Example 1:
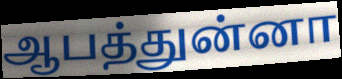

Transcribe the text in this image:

ஆபத்துன்னா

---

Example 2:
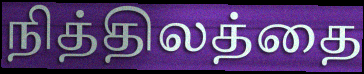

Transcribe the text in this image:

நித்திலத்தை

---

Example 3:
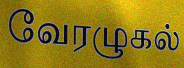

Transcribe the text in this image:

வேரழுகல்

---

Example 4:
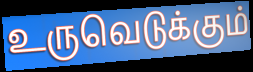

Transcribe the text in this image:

உருவெடுக்கும்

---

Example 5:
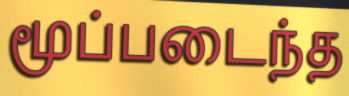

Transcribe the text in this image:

மூப்படைந்த